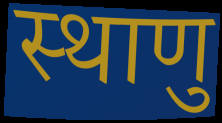
स्थाणु